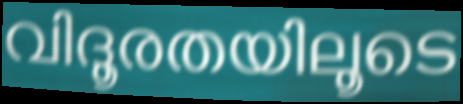
വിദൂരതയിലൂടെ